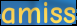
amiss